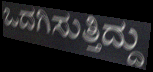
ಒದಗಿಸುತ್ತಿದ್ದು